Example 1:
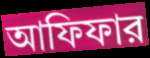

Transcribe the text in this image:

আফিফার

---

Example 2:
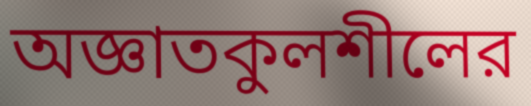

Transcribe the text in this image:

অজ্ঞাতকুলশীলের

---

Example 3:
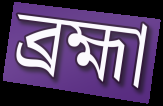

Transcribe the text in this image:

ব্রহ্মা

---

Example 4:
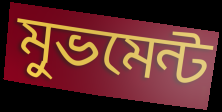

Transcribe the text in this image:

মুভমেন্ট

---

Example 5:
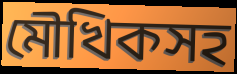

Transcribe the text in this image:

মৌখিকসহ